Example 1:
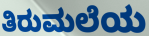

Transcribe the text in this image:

ತಿರುಮಲೆಯ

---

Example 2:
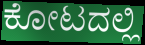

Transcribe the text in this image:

ಕೋಟದಲ್ಲಿ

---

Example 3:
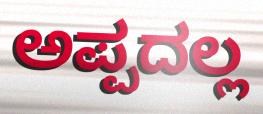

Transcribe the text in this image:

ಅಪ್ಪದಲ್ಲ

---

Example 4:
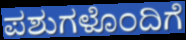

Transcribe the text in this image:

ಪಶುಗಳೊಂದಿಗೆ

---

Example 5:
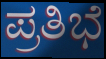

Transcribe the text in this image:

ಪ್ರತಿಭೆ